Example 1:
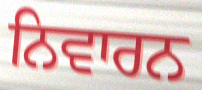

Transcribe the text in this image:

ਨਿਵਾਰਨ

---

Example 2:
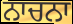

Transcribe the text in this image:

ਨਾਚਨਾ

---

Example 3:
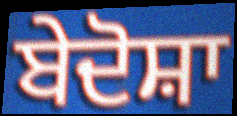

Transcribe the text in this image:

ਬੇਦੋਸ਼ਾ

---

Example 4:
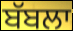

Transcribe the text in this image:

ਬੱਬਲਾ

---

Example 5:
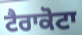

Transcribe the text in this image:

ਟੈਰਾਕੋਟਾ